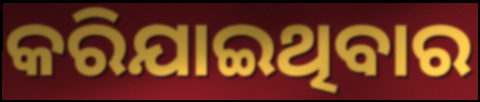
କରିଯାଇଥିବାର